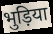
भुड़िया